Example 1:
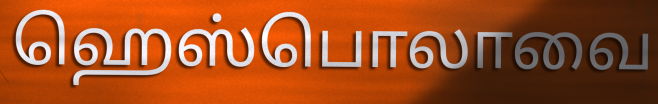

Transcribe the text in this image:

ஹெஸ்பொலாவை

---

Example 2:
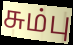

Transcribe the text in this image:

சும்பு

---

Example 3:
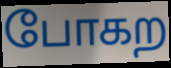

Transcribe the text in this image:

போகற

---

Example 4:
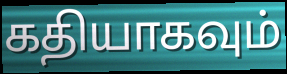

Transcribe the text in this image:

கதியாகவும்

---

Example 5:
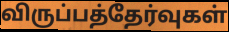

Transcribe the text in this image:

விருப்பத்தேர்வுகள்